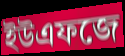
ইউএফজে